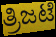
ತ್ರಿಜಟೆ